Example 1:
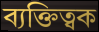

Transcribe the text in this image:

ব্যক্তিত্বক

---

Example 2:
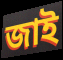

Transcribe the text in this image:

জাই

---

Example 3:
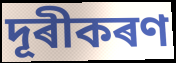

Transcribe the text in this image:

দূৰীকৰণ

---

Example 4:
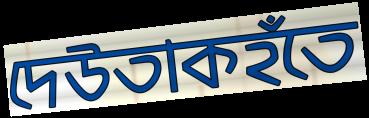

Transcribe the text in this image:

দেউতাকহঁতে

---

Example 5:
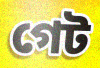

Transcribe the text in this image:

গেট